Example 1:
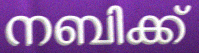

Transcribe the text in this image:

നബിക്ക്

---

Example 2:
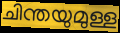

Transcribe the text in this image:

ചിന്തയുമുള്ള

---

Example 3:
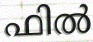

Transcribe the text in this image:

ഫിൽ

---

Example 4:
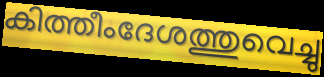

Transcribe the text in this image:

കിത്തീംദേശത്തുവെച്ചു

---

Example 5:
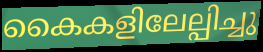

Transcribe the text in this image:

കൈകളിലേല്പിച്ചു